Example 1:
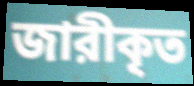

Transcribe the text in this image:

জারীকৃত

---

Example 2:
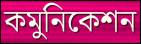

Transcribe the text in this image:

কমুনিকেশন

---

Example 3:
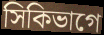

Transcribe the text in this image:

সিকিভাগে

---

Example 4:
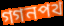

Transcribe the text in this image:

গগনপথ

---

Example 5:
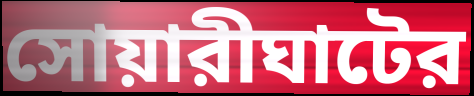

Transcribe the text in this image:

সোয়ারীঘাটের